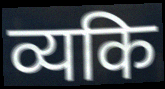
व्यकि